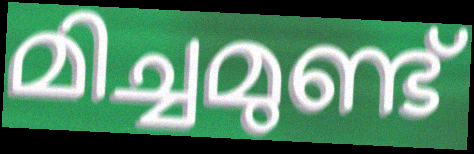
മിച്ചമുണ്ട്